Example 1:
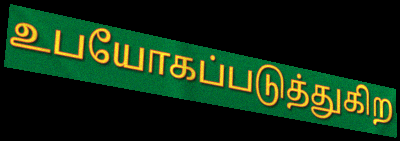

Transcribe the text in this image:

உபயோகப்படுத்துகிற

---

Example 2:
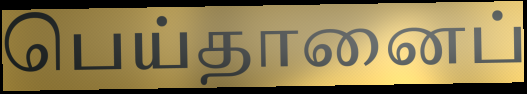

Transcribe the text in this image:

பெய்தானைப்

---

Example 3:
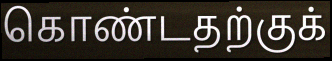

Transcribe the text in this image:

கொண்டதற்குக்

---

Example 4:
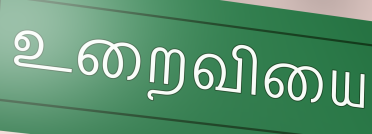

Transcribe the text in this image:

உறைவியை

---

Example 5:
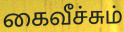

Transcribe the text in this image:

கைவீச்சும்